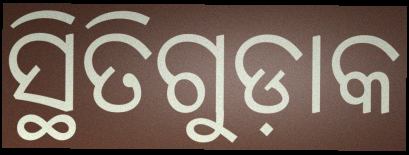
ସ୍ଥିତିଗୁଡ଼ାକ